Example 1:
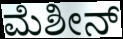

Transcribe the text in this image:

ಮೆಶೀನ್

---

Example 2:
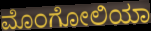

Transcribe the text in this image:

ಮೊಂಗೋಲಿಯಾ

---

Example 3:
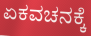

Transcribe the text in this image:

ಏಕವಚನಕ್ಕೆ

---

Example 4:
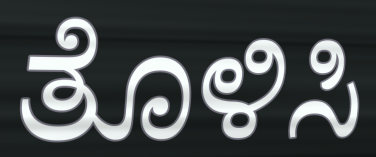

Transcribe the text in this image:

ತೊಳಿಸಿ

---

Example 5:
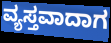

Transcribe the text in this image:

ವ್ಯಸ್ತವಾದಾಗ